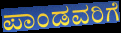
ಪಾಂಡವರಿಗೆ